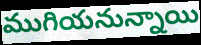
ముగియనున్నాయి